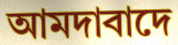
আমদাবাদে